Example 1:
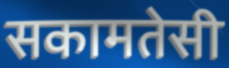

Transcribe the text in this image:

सकामतेसी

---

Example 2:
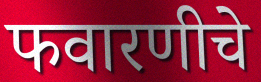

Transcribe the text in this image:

फवारणीचे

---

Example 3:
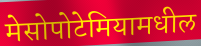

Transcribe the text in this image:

मेसोपोटेमियामधील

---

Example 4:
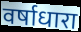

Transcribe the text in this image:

वर्षाधारा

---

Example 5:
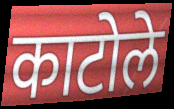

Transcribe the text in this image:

काटोले